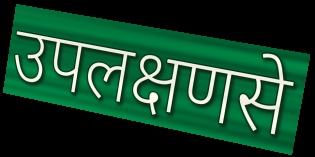
उपलक्षणसे